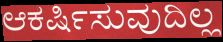
ಆಕರ್ಷಿಸುವುದಿಲ್ಲ